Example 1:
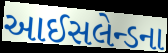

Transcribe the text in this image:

આઈસલેન્ડના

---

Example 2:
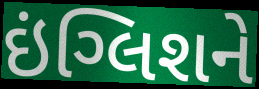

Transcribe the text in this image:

ઇંગ્લિશને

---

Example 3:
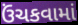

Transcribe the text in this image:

ઉંચકવામાં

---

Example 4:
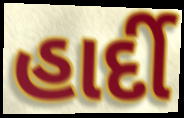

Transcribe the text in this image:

હાર્દી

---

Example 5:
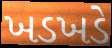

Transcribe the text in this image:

ખડખડે